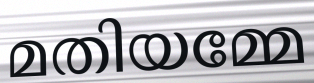
മതിയമ്മേ